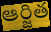
ఆర్జిత